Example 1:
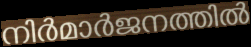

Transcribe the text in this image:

നിർമാർജനത്തിൽ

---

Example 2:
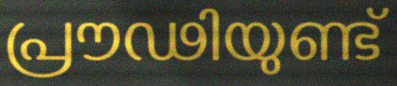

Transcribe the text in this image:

പ്രൗഢിയുണ്ട്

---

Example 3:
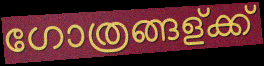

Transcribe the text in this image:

ഗോത്രങ്ങള്ക്ക്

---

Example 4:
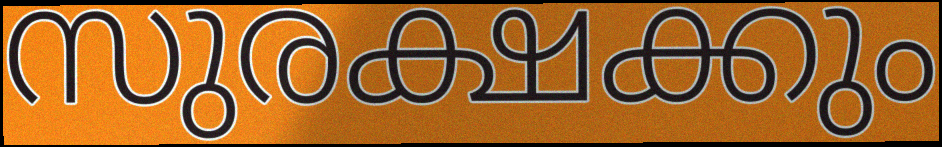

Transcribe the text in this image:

സുരക്ഷക്കും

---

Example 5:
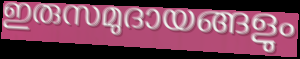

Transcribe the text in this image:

ഇരുസമുദായങ്ങളും